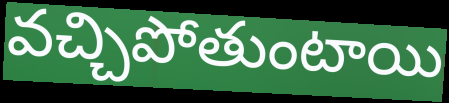
వచ్చిపోతుంటాయి